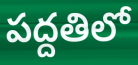
పద్దతిలో